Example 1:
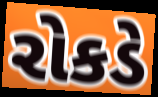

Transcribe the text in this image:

રોકડે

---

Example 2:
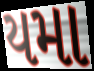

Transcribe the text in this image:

યમા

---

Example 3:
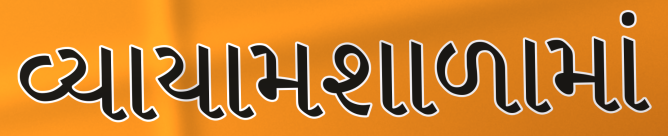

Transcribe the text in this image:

વ્યાયામશાળામાં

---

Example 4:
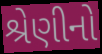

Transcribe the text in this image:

શ્રેણીનો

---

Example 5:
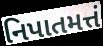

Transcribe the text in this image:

નિપાતમત્તં